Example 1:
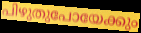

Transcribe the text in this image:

പിഴുതുപോയേക്കും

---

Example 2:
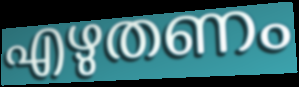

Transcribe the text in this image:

എഴുതണം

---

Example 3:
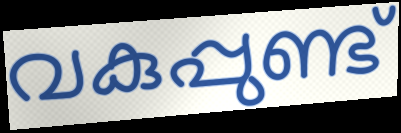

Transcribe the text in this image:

വകുപ്പുണ്ട്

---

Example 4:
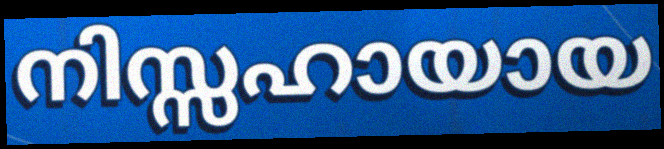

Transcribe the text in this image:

നിസ്സഹായായ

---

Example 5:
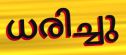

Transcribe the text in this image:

ധരിച്ചു